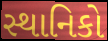
સ્થાનિકો